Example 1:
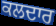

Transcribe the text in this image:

ਕਲਦਾਰ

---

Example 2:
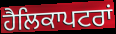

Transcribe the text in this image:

ਹੈਲਿਕਾਪਟਰਾਂ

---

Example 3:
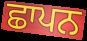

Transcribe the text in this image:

ਛਾਪਨ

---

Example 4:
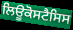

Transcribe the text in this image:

ਲਿਊਕੋਸਟੈਸਿਸ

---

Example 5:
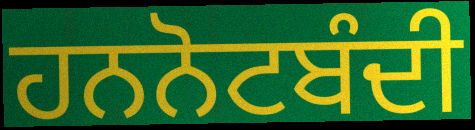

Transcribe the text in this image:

ਹਨਨੋਟਬੰਦੀ